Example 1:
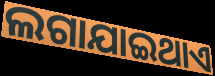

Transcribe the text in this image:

ଲଗାଯାଇଥାଏ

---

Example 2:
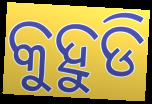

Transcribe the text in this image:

କୁହୁଡି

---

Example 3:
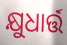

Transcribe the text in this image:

କ୍ଷୁଧାର୍ତ୍ତ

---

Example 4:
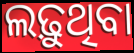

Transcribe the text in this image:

ଲଢ଼ୁଥିବା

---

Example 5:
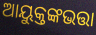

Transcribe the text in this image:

ଆୟୁକ୍ତଙ୍କଭତ୍ତା